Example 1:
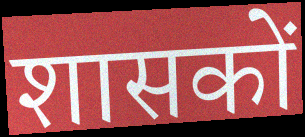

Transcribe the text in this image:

शासकों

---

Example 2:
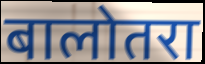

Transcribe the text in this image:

बालोतरा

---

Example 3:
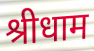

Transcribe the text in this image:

श्रीधाम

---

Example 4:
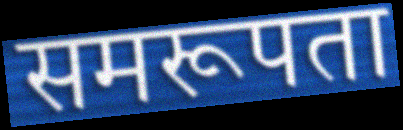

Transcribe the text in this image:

समरूपता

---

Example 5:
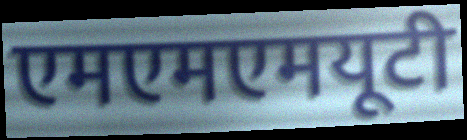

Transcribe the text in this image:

एमएमएमयूटी